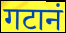
गटानं